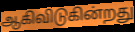
ஆகிவிடுகின்றது